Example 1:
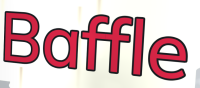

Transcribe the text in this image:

Baffle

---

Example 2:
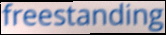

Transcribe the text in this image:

freestanding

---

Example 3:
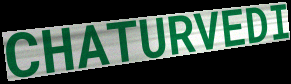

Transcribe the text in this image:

CHATURVEDI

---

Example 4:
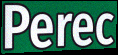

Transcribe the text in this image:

Perec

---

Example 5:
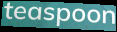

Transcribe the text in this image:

teaspoon